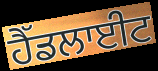
ਹੈੱਡਲਾਈਟ